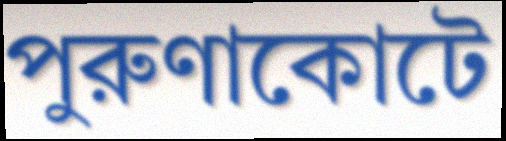
পুরুণাকোটে